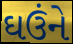
ઘઉંને